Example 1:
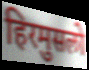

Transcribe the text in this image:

हिरमुसलो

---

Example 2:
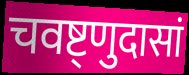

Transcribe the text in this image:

चवष्ट्णुदासां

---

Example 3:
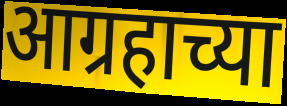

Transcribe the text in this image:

आग्रहाच्या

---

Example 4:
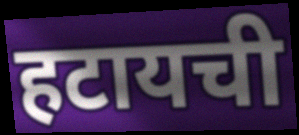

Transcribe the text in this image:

हटायची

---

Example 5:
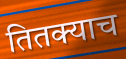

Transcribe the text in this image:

तितक्‍याच